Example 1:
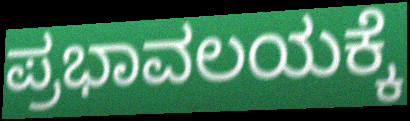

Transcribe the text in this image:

ಪ್ರಭಾವಲಯಕ್ಕೆ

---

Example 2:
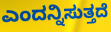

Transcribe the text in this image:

ಎಂದನ್ನಿಸುತ್ತದೆ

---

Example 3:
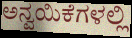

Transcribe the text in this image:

ಅನ್ವಯಿಕೆಗಳಲ್ಲಿ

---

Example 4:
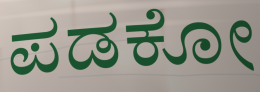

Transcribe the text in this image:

ಪಡಕೋ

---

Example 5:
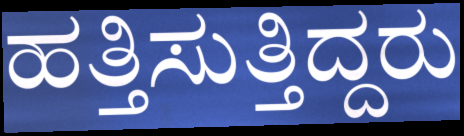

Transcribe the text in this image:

ಹತ್ತಿಸುತ್ತಿದ್ದರು